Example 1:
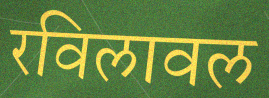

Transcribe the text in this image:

रविलावल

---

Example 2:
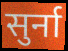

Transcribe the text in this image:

सुर्ना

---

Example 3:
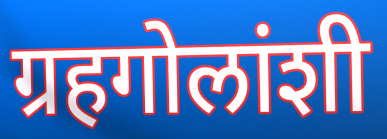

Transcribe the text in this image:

ग्रहगोलांशी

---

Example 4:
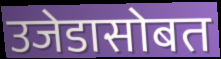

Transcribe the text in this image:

उजेडासोबत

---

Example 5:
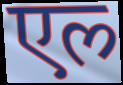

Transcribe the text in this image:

एल्‍